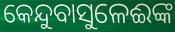
କେନ୍ଦୁବାସୁଳେଈଙ୍କ